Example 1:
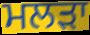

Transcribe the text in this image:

ਮਲੜਾ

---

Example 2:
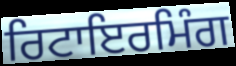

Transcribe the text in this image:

ਰਿਟਾਇਰਮਿੰਗ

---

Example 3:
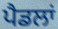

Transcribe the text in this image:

ਪੈਡਲਾਂ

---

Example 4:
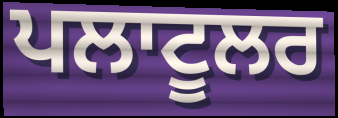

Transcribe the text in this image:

ਪਲਾਟੂਲਰ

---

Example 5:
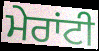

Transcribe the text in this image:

ਮੇਰਾਂਟੀ